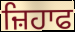
ਜ਼ਿਹਾਫ